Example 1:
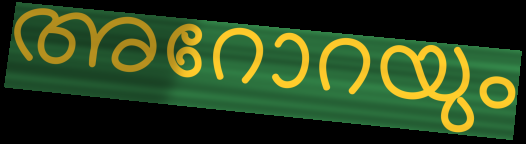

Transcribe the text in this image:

അറോറയും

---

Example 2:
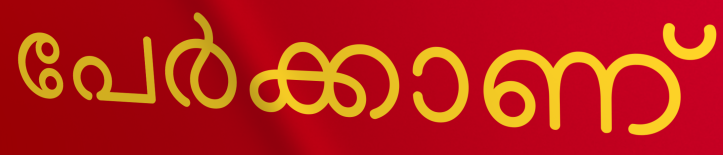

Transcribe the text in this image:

പേർക്കാണ്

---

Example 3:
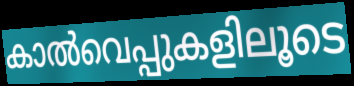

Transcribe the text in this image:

കാൽവെപ്പുകളിലൂടെ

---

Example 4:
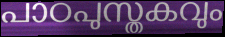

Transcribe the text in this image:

പാഠപുസ്തകവും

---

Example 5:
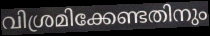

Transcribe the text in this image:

വിശ്രമിക്കേണ്ടതിനും